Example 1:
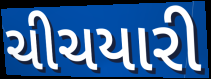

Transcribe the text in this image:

ચીચયારી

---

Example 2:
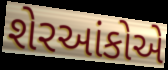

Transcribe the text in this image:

શેરઆંકોએ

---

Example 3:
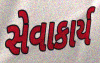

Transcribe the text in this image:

સેવાકાર્ય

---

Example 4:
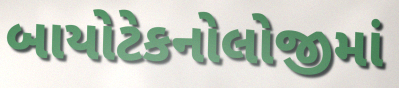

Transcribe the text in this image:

બાયોટેકનોલોજીમાં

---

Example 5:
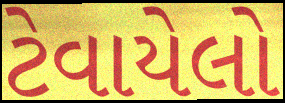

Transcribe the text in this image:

ટેવાયેલો